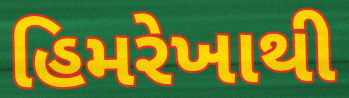
હિમરેખાથી